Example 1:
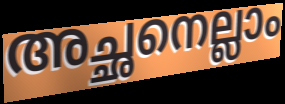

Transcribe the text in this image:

അച്ഛനെല്ലാം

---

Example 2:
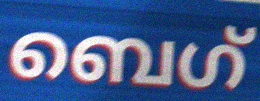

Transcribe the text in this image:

ബെഗ്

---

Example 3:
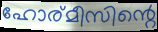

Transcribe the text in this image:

ഹോര്മീസിന്റെ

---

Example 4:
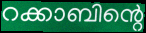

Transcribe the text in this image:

റക്കാബിന്റെ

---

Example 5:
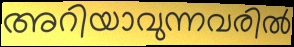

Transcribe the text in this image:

അറിയാവുന്നവരിൽ